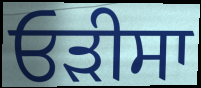
ਓੜੀਸਾ